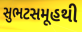
સુભટસમૂહથી